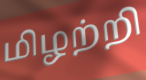
மிழற்றி